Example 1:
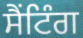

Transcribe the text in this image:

ਸੈਂਟਿੰਗ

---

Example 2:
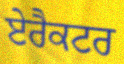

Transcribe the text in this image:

ਏਰੈਕਟਰ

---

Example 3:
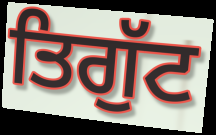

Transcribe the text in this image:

ਤਿਗੁੱਟ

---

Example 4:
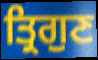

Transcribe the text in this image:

ਤ੍ਰਿਗੁਣ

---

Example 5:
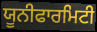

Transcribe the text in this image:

ਯੂਨੀਫਾਰਮਿਟੀ